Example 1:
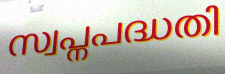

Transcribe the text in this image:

സ്വപ്നപദ്ധതി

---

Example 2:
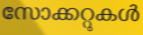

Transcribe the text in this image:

സോക്കറ്റുകൾ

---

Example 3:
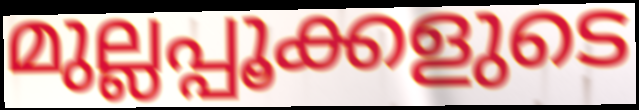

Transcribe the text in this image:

മുല്ലപ്പൂക്കളുടെ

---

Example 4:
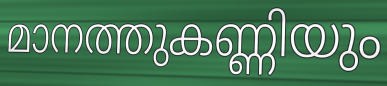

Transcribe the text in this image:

മാനത്തുകണ്ണിയും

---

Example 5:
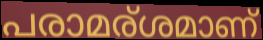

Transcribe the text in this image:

പരാമര്ശമാണ്